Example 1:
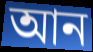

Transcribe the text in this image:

আন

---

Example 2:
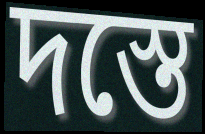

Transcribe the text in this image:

দস্তে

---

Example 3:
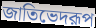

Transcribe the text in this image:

জাতিভেদরূপ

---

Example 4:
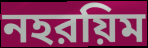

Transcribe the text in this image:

নহরয়িম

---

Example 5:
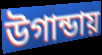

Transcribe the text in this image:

উগান্ডায়